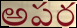
అపర